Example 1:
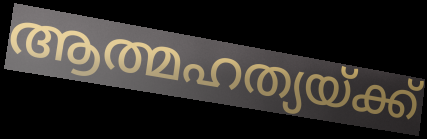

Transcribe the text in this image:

ആത്മഹത്യയ്ക്ക്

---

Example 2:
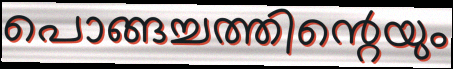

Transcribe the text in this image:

പൊങ്ങച്ചത്തിന്റെയും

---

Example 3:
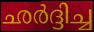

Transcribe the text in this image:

ഛർദ്ദിച്ച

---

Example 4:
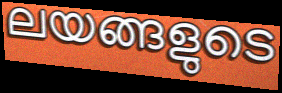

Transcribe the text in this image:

ലയങ്ങളുടെ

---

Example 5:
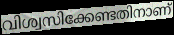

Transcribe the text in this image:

വിശ്വസിക്കേണ്ടതിനാണ്